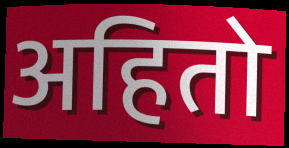
अहितो